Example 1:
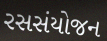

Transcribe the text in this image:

રસસંયોજન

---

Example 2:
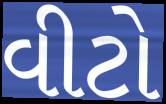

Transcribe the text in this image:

વીટો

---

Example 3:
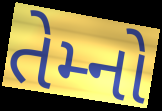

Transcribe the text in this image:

તેમ્નો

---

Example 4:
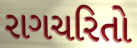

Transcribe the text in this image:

રાગચરિતો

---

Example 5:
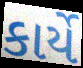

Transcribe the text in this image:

કાર્યે